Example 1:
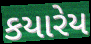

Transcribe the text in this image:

કયારેય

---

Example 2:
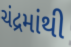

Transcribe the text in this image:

ચંદ્રમાંથી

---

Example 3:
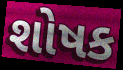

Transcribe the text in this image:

શોષક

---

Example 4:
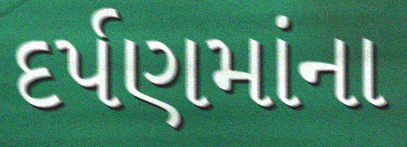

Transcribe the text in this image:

દર્પણમાંના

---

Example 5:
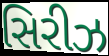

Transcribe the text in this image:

સિરીઝ